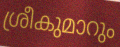
ശ്രീകുമാറും